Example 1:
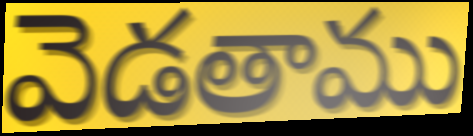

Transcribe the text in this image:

వెడతాము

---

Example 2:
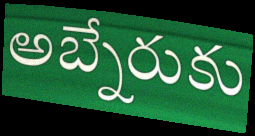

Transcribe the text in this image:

అబ్నేరుకు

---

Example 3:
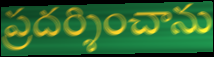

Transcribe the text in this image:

ప్రదర్శించాను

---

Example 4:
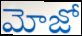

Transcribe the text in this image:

మోజో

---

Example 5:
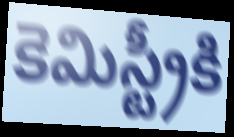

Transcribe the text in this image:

కెమిస్ట్రీకి